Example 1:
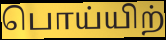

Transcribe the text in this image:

பொய்யிற்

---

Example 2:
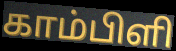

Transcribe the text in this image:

காம்பிளி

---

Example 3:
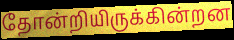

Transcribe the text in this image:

தோன்றியிருக்கின்றன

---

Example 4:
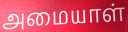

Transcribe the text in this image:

அமையாள்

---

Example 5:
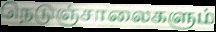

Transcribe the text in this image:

நெடுஞ்சாலைகளும்